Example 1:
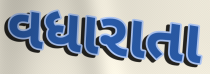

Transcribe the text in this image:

વધારાતા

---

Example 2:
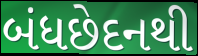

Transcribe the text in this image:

બંધછેદનથી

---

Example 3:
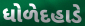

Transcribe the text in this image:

ધોળેદહાડે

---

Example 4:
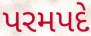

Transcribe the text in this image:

પરમપદે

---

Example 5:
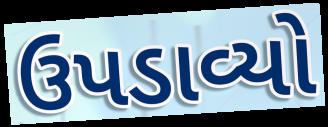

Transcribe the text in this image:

ઉપડાવ્યો